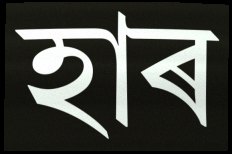
হাৰ